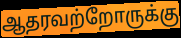
ஆதரவற்றோருக்கு